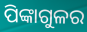
ପିଙ୍କାଗୁଳର